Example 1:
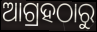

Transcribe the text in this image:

ଆଗ୍ରହଠାରୁ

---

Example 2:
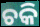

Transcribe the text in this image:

ଚକି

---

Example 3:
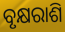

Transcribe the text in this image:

ବୃକ୍ଷରାଶି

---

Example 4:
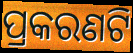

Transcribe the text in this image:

ପ୍ରକରଣଟି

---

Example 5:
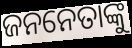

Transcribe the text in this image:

ଜନନେତାଙ୍କୁ